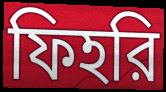
ফিহরি